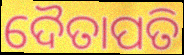
ଦୈତାପତି